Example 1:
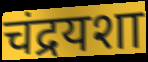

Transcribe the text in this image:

चंद्रयशा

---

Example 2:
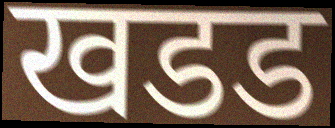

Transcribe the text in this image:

खडड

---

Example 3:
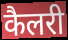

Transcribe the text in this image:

कैलरी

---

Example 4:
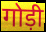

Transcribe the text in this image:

गोड़ी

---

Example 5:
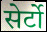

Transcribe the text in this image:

सेर्टो